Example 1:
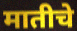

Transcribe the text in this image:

मातीचे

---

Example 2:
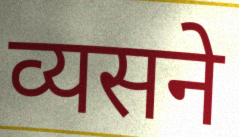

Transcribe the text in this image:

व्यसने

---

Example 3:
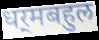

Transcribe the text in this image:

धर्मबहुल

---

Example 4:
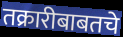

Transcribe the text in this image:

तक्रारीबाबतचे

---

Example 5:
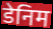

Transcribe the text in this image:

डेनिम